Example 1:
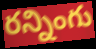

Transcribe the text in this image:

రన్నింగు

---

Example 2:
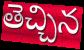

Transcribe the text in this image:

తెచ్చిన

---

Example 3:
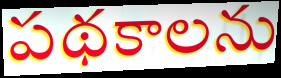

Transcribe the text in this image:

పథకాలను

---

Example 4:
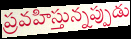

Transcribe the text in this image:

ప్రవహిస్తున్నప్పుడు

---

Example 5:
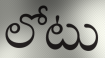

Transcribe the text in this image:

లోటు